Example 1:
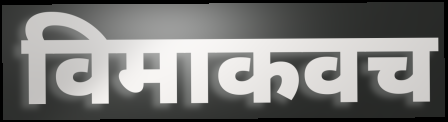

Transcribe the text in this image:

विमाकवच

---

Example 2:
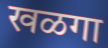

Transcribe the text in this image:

खळगा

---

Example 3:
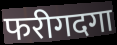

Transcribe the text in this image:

फरीगदगा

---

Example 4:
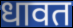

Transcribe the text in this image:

धावत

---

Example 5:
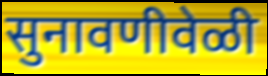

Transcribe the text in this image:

सुनावणीवेळी